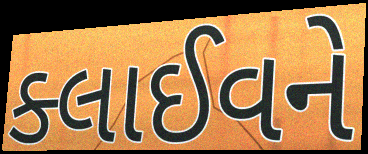
ક્લાઈવને